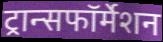
ट्रान्सफॉर्मेशन